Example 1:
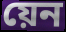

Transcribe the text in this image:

য়েন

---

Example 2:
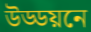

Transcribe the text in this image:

উড্ডয়নে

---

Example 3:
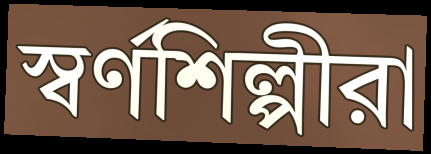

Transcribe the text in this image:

স্বর্ণশিল্পীরা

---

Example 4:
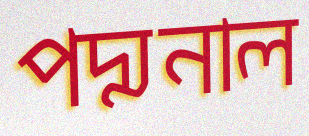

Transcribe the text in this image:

পদ্মনাল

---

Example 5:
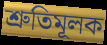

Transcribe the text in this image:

শ্রুতিমূলক